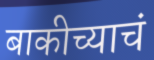
बाकीच्याचं